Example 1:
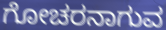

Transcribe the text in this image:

ಗೋಚರನಾಗುವ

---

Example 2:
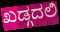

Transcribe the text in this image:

ಖಡ್ಗದಲಿ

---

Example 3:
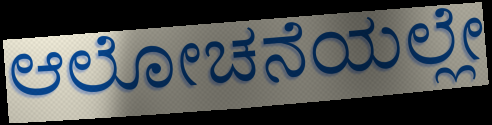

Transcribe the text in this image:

ಆಲೋಚನೆಯಲ್ಲೇ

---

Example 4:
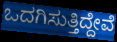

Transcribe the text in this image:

ಒದಗಿಸುತ್ತಿದ್ದೇವೆ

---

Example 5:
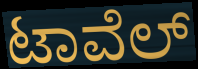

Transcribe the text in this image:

ಟಾವೆಲ್